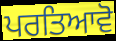
ਪਰਤਿਆਵੋ